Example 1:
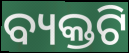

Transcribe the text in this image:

ବ୍ୟକ୍ତଟି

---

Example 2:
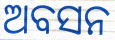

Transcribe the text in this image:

ଅବସନ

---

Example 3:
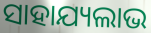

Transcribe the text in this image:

ସାହାଯ୍ୟଲାଭ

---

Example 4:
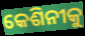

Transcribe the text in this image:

କେଶିନୀକୁ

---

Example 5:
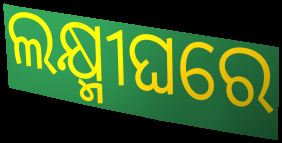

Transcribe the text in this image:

ଲକ୍ଷ୍ମୀଘରେ